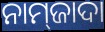
ନାମ୍‍ଜାଦା